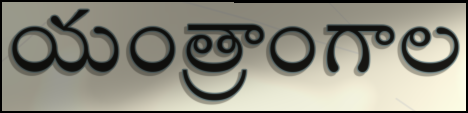
యంత్రాంగాల